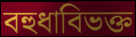
বহুধাবিভক্ত